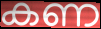
കണ